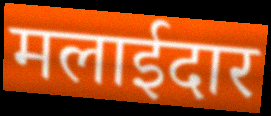
मलाईदार